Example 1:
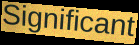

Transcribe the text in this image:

Significant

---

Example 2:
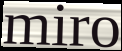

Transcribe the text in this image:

miro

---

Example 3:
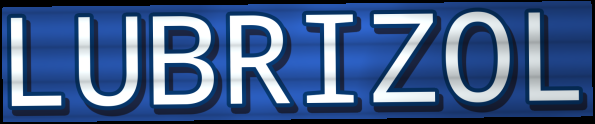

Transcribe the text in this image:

LUBRIZOL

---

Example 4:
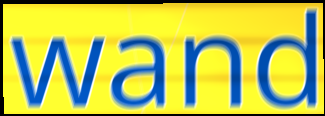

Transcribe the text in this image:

wand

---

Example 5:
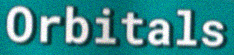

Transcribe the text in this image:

Orbitals